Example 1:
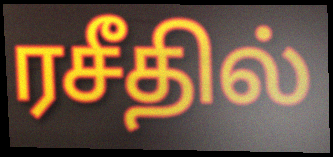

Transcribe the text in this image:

ரசீதில்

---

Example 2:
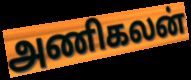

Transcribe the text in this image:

அணிகலன்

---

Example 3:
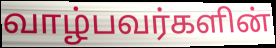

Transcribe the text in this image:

வாழ்பவர்களின்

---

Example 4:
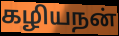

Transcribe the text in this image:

கழியநன்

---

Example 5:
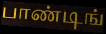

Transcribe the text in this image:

பாண்டிங்